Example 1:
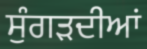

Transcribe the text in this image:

ਸੁੰਗੜਦੀਆਂ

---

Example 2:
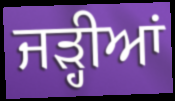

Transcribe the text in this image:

ਜੜ੍ਹੀਆਂ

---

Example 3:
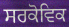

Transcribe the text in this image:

ਸਰਕੋਵਿਕ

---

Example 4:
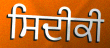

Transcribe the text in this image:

ਸਿਦੀਕੀ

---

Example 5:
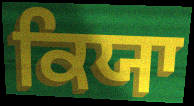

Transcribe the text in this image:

ਕਿਯਾ